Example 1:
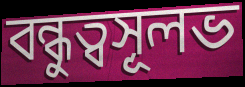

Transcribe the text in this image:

বন্ধুত্বসূলভ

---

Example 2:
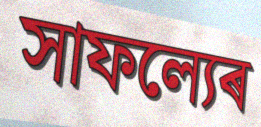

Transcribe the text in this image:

সাফল্যেৰ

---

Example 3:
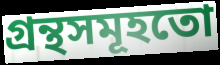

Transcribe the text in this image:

গ্ৰন্থসমূহতো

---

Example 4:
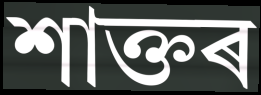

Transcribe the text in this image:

শাক্তৰ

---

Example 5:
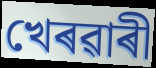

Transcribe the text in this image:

খেৰৱাৰী